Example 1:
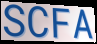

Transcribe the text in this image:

SCFA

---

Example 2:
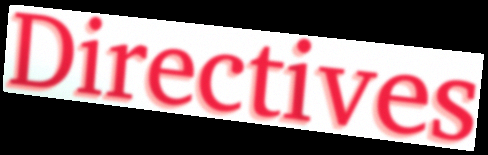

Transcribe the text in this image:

Directives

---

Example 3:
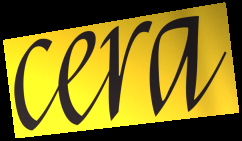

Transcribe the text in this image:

cera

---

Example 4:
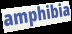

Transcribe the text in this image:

amphibia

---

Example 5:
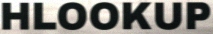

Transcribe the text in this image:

HLOOKUP